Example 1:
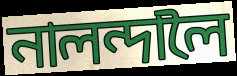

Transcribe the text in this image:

নালন্দালৈ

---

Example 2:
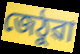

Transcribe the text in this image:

জেঠুৱা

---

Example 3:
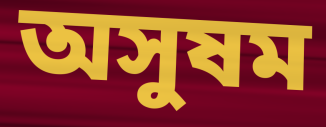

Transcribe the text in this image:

অসুষম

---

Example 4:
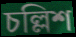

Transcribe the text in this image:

চল্লিশ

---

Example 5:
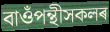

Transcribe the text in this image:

বাওঁপন্থীসকলৰ